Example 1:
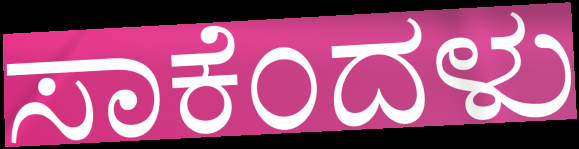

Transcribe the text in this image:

ಸಾಕೆಂದಳು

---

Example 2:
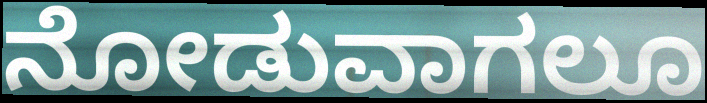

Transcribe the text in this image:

ನೋಡುವಾಗಲೂ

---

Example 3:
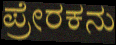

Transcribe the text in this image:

ಪ್ರೇರಕನು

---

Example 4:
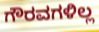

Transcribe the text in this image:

ಗೌರವಗಳಿಲ್ಲ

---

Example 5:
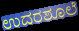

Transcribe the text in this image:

ಉದರಶೂಲೆ